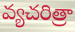
వ్యచరిత్రా